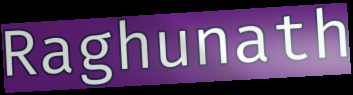
Raghunath